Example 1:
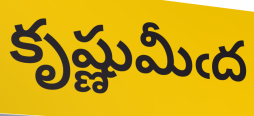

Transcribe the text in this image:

కృష్ణుమీఁద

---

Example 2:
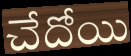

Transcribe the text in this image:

చేదోయి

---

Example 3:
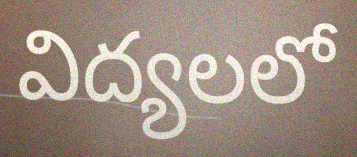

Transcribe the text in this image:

విద్యలలో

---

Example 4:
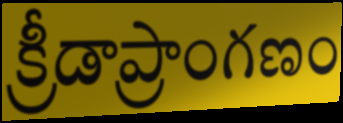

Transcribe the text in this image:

క్రీడాప్రాంగణం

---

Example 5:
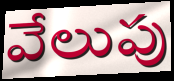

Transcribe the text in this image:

వేలుపు